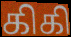
கிகி